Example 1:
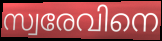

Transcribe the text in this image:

സ്വരേവിനെ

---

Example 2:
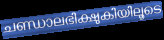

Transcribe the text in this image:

ചണ്ഡാലഭിക്ഷുകിയിലൂടെ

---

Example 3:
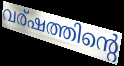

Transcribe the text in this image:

വര്ഷത്തിന്റെ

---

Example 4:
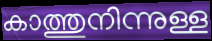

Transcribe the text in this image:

കാത്തുനിന്നുള്ള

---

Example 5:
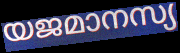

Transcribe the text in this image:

യജമാനസ്യ